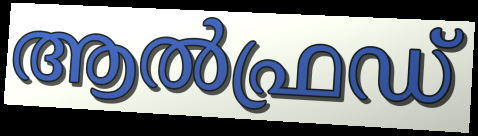
ആൽഫ്രഡ്